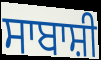
ਸਾਬਾਸ਼ੀ